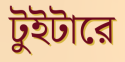
টুইটারে